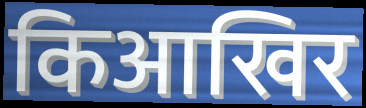
किआखिर